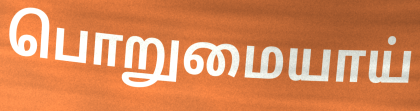
பொறுமையாய்